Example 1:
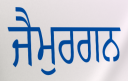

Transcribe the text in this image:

ਜੈਮੁਰਗਨ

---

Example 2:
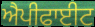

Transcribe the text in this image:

ਐਪੀਫਾਈਟ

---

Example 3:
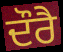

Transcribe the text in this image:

ਦੌਰੈ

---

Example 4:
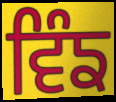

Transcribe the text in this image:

ਵਿੰਙ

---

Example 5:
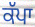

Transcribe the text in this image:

ਕੱਪਾ